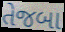
તેજબા